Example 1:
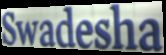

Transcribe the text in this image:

Swadesha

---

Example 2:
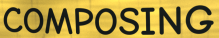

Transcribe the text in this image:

COMPOSING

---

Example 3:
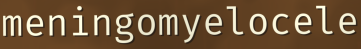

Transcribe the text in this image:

meningomyelocele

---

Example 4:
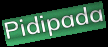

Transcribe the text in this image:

Pidipada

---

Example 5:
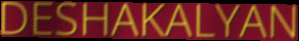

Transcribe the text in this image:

DESHAKALYAN